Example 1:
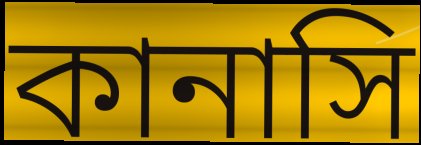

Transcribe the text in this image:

কানাসি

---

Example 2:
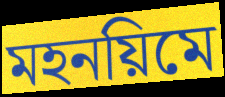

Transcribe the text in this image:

মহনয়িমে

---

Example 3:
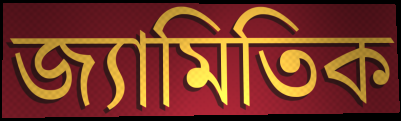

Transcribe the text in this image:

জ্যামিতিক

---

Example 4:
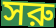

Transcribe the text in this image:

সরু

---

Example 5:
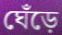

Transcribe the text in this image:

ঘেঁড়ে